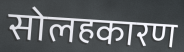
सोलहकारण